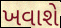
ખવાશે